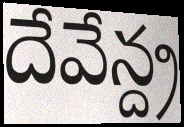
దేవేన్ద్ర